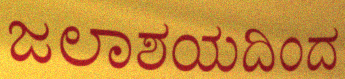
ಜಲಾಶಯದಿಂದ